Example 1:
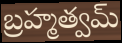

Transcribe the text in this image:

బ్రహ్మత్వమ్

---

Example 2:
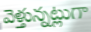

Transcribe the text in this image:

వెళ్తున్నట్లుగా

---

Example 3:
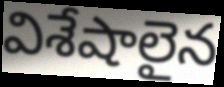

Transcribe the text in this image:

విశేషాలైన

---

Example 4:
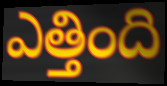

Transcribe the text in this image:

ఎత్తింది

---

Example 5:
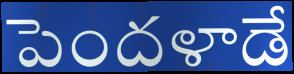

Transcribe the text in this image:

పెందళాడే